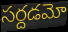
సర్దడమో